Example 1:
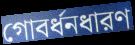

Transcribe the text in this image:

গোবর্ধনধারণ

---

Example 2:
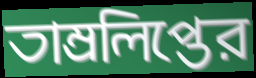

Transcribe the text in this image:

তাম্রলিপ্তের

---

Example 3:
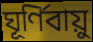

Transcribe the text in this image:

ঘূর্ণিবায়ু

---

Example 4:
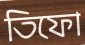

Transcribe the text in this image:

তিফো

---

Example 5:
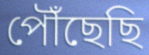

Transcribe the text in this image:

পৌঁছেছি